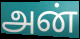
அன்